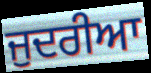
ਜੁਦਰੀਆ